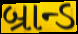
બ્રાન્ડ